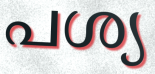
പശ്യ